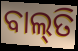
ବାଲ୍‌ତି